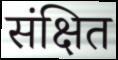
संक्षित